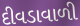
દીવડાવાળી